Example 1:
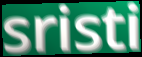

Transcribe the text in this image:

sristi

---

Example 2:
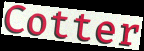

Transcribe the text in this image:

Cotter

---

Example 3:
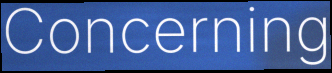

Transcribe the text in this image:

Concerning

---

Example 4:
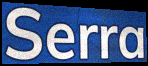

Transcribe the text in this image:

Serra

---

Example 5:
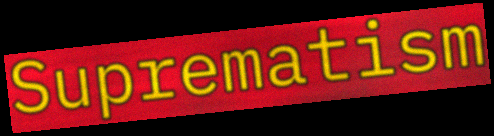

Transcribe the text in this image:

Suprematism